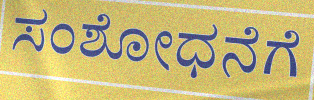
ಸಂಶೋಧನೆಗೆ